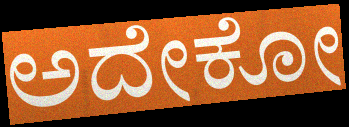
ಅದೇಕೋ